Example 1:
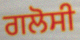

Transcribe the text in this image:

ਗਲੋਸੀ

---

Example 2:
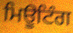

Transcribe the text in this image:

ਮਿਊਟਿੰਗ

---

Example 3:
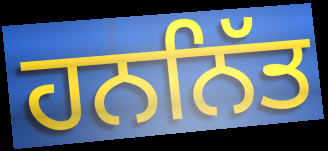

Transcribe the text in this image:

ਹਨਨਿੱਤ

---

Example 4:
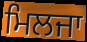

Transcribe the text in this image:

ਮਿਲਜਾ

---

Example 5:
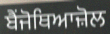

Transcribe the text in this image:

ਬੈਂਜੋਥਿਆਜ਼ੋਲ